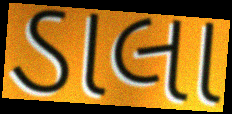
ડાલા